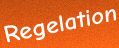
Regelation